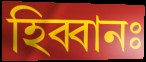
হিব্বানঃ